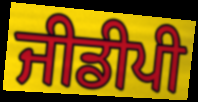
ਜੀਡੀਪੀ